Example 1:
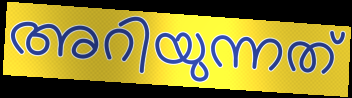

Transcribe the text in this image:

അറിയുന്നത്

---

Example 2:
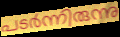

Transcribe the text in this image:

പടർന്നിരുന്നു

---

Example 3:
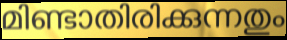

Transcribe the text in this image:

മിണ്ടാതിരിക്കുന്നതും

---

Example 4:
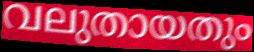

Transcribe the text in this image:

വലുതായതും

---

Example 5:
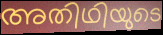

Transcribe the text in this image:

അതിഥിയുടെ